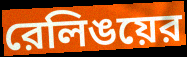
রেলিঙয়ের